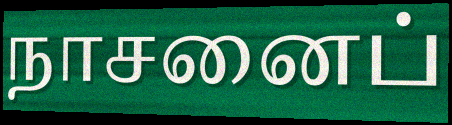
நாசனைப்